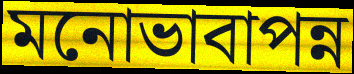
মনোভাবাপন্ন